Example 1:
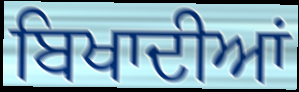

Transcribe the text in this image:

ਬਿਖਾਦੀਆਂ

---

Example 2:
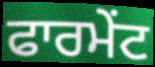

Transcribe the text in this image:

ਫਾਰਮੇਂਟ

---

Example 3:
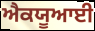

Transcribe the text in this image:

ਐਕਯੂਆਈ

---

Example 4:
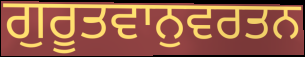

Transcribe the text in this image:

ਗੁਰੂਤਵਾਨੁਵਰਤਨ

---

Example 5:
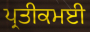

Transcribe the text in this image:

ਪ੍ਰਤੀਕਮਈ